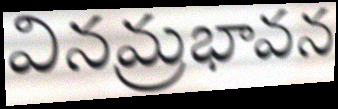
వినమ్రభావన